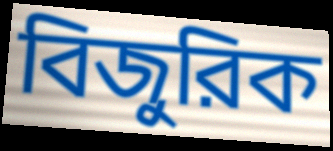
বিজুরিক